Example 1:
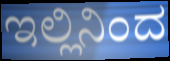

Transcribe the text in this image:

ಇಲ್ಲಿನಿಂದ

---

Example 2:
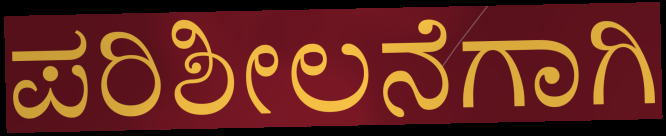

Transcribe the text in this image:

ಪರಿಶೀಲನೆಗಾಗಿ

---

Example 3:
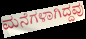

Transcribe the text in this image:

ಮನೆಗಳಾಗಿದ್ದವು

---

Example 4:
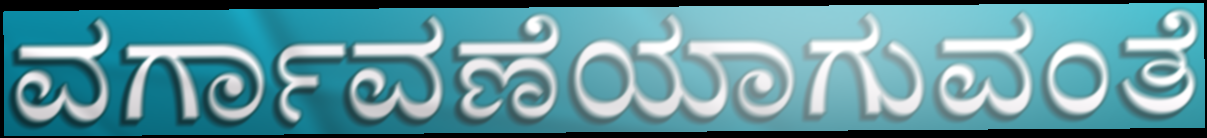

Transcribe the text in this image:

ವರ್ಗಾವಣೆಯಾಗುವಂತೆ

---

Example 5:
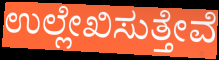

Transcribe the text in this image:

ಉಲ್ಲೇಖಿಸುತ್ತೇವೆ